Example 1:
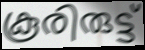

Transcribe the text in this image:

കൂരിരുട്ട്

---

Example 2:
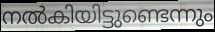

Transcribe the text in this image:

നൽകിയിട്ടുണ്ടെന്നും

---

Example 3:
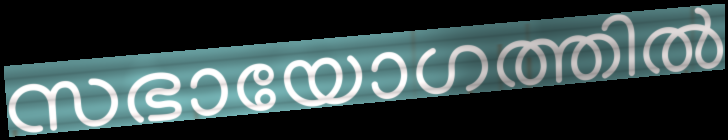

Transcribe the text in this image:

സഭായോഗത്തിൽ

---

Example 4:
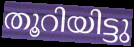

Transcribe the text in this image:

തൂറിയിട്ടു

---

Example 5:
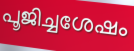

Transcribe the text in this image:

പൂജിച്ചശേഷം